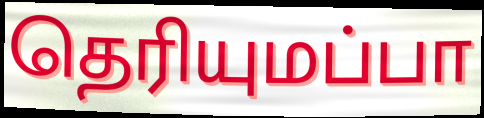
தெரியுமப்பா